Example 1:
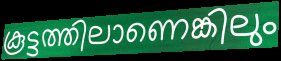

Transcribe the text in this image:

കൂട്ടത്തിലാണെങ്കിലും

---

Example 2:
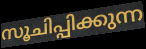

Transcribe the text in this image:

സൂചിപ്പിക്കുന്ന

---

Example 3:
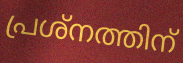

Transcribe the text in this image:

പ്രശ്നത്തിന്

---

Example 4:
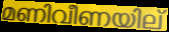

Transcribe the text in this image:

മണിവീണയില്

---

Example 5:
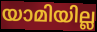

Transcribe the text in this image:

യാമിയില്ല